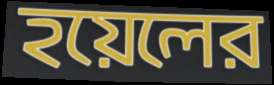
হয়েলের